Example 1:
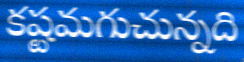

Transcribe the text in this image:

కష్టమగుచున్నది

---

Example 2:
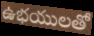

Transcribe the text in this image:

ఉభయులతో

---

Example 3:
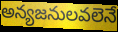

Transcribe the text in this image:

అన్యజనులవలెనే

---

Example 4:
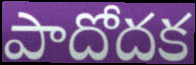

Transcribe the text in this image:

పాదోదక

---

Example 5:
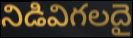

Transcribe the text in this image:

నిడివిగలదై